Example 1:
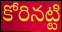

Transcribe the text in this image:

కోరినట్టి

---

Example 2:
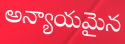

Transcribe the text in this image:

అన్యాయమైన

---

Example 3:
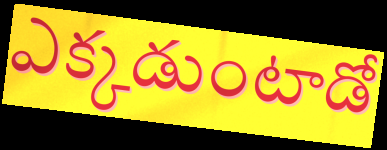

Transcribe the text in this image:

ఎక్కడుంటాడో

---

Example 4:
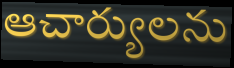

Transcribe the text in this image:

ఆచార్యులను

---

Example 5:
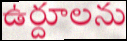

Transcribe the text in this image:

ఉర్దూలను